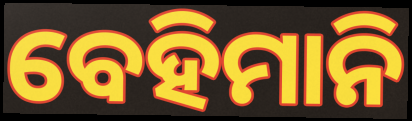
ବେହିମାନି